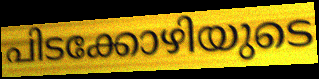
പിടക്കോഴിയുടെ